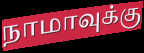
நாமாவுக்கு